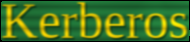
Kerberos